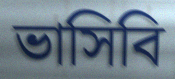
ভাসিবি